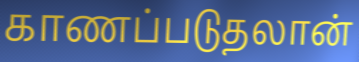
காணப்படுதலான்